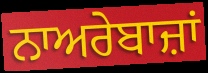
ਨਾਅਰੇਬਾਜ਼ਾਂ